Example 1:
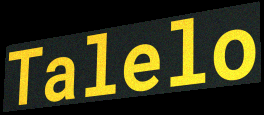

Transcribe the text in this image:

Talelo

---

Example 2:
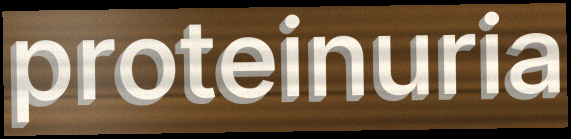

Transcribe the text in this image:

proteinuria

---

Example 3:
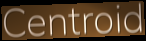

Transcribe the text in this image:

Centroid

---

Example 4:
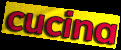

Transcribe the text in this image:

cucina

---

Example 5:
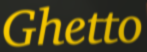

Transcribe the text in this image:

Ghetto